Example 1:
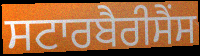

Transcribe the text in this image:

ਸਟਾਰਬੈਰੀਸੈਂਸ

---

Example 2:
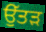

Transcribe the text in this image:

ਉੱਤੜ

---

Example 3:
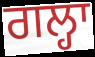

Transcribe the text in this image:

ਗਲ੍ਹ੍ਹਾ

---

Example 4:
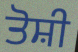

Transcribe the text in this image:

ਤੋਸ਼ੀ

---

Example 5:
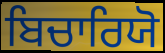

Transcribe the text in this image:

ਬਿਚਾਰਿਯੋ